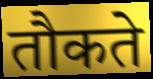
तौकते